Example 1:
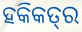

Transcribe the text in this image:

ହକିକତ୍‌ର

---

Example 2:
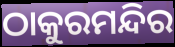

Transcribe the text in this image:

ଠାକୁରମନ୍ଦିର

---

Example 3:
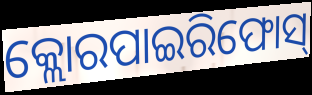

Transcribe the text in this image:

କ୍ଲୋରପାଇରିଫୋସ୍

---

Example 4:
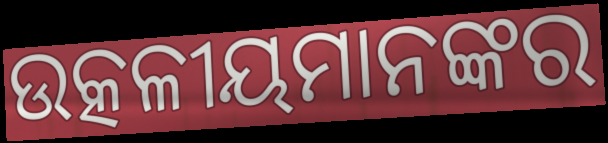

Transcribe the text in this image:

ଉତ୍କଳୀୟମାନଙ୍କର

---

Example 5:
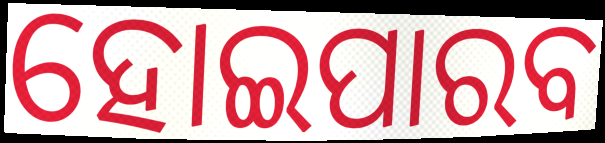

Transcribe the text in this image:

ହୋଇପାରବ